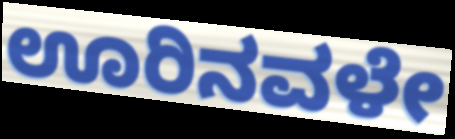
ಊರಿನವಳೇ